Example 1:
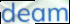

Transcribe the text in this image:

deam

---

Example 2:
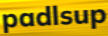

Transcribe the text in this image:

padlsup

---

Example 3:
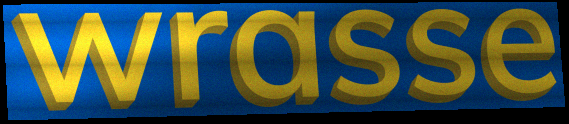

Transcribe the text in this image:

wrasse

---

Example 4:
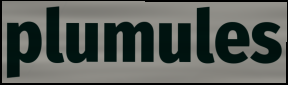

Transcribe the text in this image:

plumules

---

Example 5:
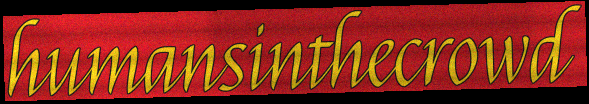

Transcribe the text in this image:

humansinthecrowd